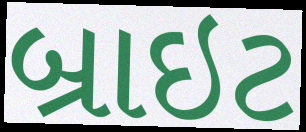
બ્રાઇટ